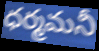
ధర్మమనీ